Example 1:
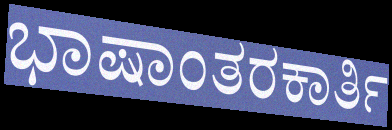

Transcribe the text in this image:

ಭಾಷಾಂತರಕಾರ್ತಿ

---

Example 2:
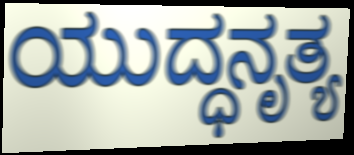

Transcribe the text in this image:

ಯುದ್ಧನೃತ್ಯ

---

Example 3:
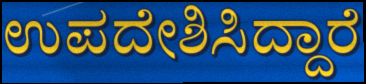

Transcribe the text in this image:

ಉಪದೇಶಿಸಿದ್ದಾರೆ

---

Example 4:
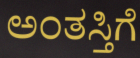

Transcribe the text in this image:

ಅಂತಸ್ತಿಗೆ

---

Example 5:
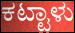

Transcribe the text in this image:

ಕಟ್ಟಾಳು